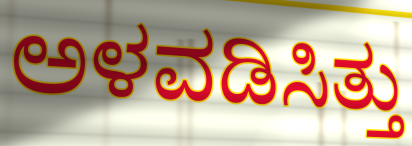
ಅಳವಡಿಸಿತ್ತು